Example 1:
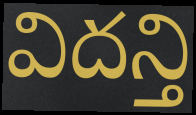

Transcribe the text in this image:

విదన్తి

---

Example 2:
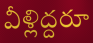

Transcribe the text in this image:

వీళ్లిద్దరూ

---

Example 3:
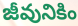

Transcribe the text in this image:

జీవునికిం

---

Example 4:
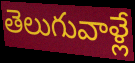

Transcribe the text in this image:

తెలుగువాళ్లే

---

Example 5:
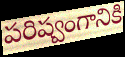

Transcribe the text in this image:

పరిష్వంగానికి